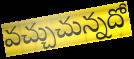
వచ్చుచున్నదో